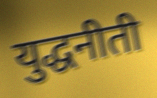
युद्धनीती